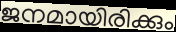
ജനമായിരിക്കും